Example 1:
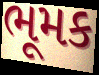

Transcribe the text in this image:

ભૂમક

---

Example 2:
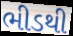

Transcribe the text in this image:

ભીડથી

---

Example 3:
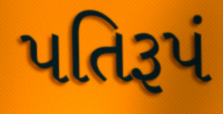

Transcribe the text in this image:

પતિરૂપં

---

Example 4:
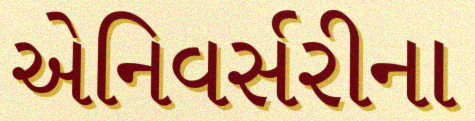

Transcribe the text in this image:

એનિવર્સરીના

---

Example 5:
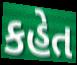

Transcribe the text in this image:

કહેત